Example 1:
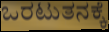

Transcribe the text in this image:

ಒರಟುತನಕ್ಕೆ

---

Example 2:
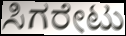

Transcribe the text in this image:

ಸಿಗರೇಟು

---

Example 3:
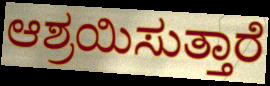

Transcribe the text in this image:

ಆಶ್ರಯಿಸುತ್ತಾರೆ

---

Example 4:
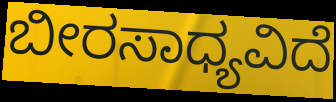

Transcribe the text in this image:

ಬೀರಸಾಧ್ಯವಿದೆ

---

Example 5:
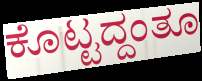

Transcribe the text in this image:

ಕೊಟ್ಟದ್ದಂತೂ